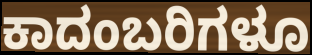
ಕಾದಂಬರಿಗಳೂ